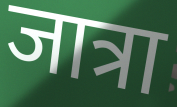
जात्रा